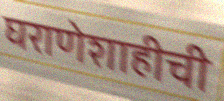
घराणेशाहीची